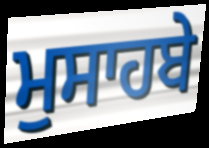
ਮੁਸਾਹਬੇ